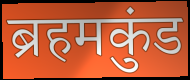
ब्रहमकुंड